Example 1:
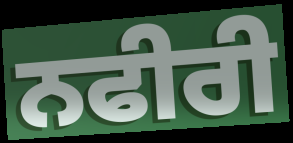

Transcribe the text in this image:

ਨਫੀਰੀ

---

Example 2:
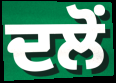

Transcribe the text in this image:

ਦਲੋਂ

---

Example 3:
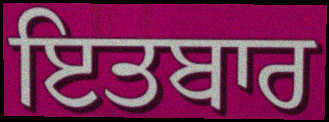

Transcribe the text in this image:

ਇਤਬਾਰ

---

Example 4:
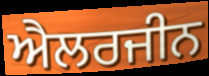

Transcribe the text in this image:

ਐਲਰਜੀਨ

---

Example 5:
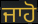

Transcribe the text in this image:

ਜਾਹੋ